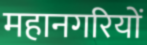
महानगरियों